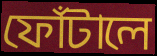
ফোঁটালে